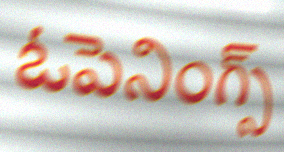
ఓపెనింగ్స్